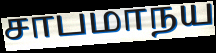
சாபமாநய